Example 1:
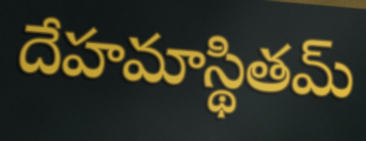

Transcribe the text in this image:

దేహమాస్థితమ్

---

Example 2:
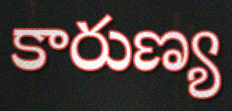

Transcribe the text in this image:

కారుణ్య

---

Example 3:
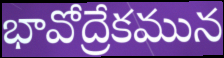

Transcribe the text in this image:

భావోద్రేకమున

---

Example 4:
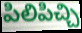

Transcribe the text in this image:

పిలిపిచ్చి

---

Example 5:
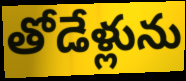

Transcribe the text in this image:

తోడేళ్లును